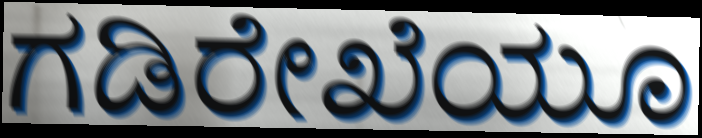
ಗಡಿರೇಖೆಯೂ